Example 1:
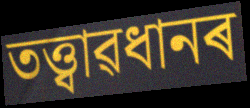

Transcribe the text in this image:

তত্ত্বাৱধানৰ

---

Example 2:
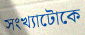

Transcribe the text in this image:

সংখ্যাটোকে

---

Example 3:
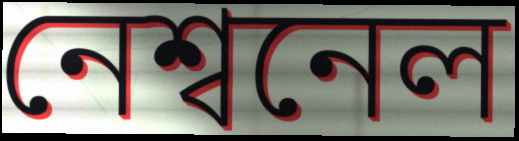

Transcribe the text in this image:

নেশ্বনেল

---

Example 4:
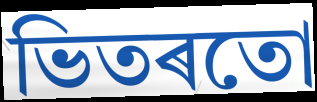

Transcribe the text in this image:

ভিতৰতো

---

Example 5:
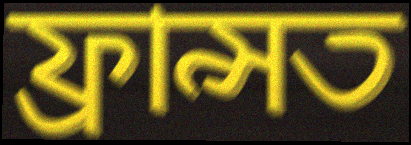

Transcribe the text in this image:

ফ্ৰান্সত